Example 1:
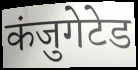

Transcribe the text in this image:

कंजुगेटेड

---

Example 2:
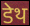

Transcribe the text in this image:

डेथ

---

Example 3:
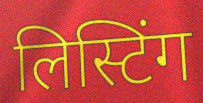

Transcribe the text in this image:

लिस्टिंग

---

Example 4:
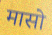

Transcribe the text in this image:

मासो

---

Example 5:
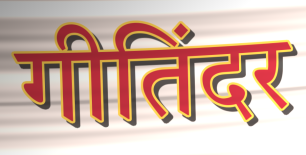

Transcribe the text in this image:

गीतिंदर